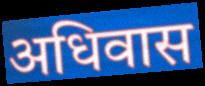
अधिवास